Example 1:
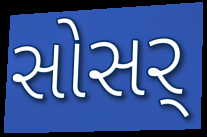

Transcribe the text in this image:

સોસર્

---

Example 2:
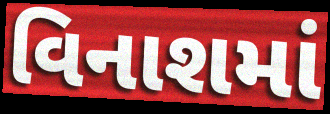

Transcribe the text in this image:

વિનાશમાં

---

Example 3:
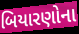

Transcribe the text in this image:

બિયારણોના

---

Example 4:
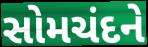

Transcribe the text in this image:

સોમચંદને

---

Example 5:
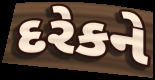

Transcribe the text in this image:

દરેકને